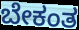
ಬೇಕಂತ